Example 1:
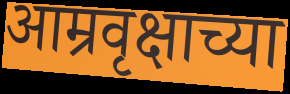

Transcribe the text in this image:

आम्रवृक्षाच्या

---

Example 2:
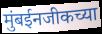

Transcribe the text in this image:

मुंबईनजीकच्या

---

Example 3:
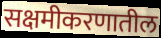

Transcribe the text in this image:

सक्षमीकरणातील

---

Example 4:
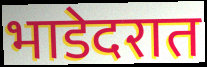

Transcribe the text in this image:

भाडेदरात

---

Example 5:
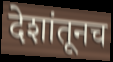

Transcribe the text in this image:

देशांतूनच